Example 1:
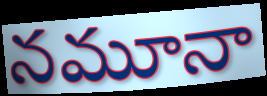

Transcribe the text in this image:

నమూనా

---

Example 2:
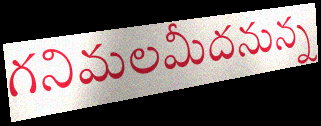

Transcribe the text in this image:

గనిమలమీదనున్న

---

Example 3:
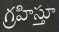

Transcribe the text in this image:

గ్రహిస్తూ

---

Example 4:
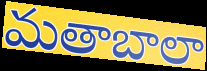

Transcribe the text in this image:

మతాబాలా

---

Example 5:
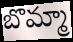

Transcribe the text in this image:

బొమ్మా